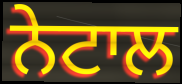
ਨੇਟਾਲ